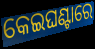
କେଇଘଣ୍ଟାରେ